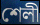
শেলী